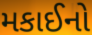
મકાઈનો